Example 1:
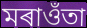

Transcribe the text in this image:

মৰাওঁতা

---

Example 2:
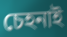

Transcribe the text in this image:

চেহনাই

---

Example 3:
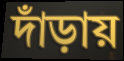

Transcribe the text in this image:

দাঁড়ায়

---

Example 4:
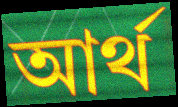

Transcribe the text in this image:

আৰ্থ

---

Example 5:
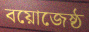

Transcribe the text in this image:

বয়োজেষ্ঠ